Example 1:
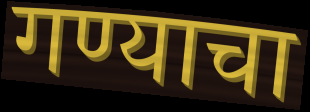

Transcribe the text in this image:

गण्याचा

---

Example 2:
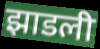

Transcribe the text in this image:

झाडली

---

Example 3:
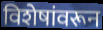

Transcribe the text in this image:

विशेषांवरून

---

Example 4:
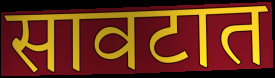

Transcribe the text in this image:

सावटात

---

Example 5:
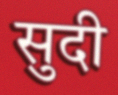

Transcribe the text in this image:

सुदी